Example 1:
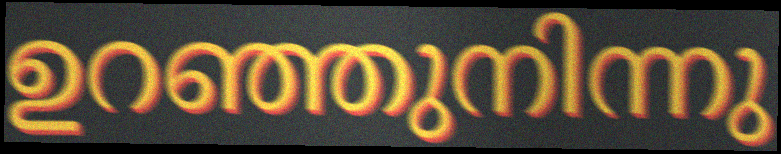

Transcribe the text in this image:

ഉറഞ്ഞുനിന്നു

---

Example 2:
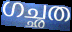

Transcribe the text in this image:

ഗച്ഛത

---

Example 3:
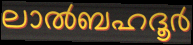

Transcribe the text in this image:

ലാൽബഹദൂർ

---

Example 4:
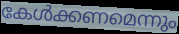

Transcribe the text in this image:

കേൾക്കണമെന്നും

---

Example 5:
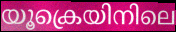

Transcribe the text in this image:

യൂക്രെയിനിലെ